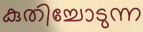
കുതിച്ചോടുന്ന